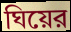
ঘিয়ের